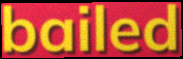
bailed